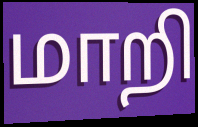
மாறி